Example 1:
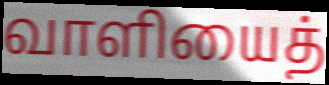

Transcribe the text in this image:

வாளியைத்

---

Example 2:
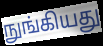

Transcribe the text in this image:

நுங்கியது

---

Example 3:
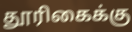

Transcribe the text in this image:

தூரிகைக்கு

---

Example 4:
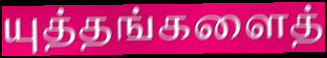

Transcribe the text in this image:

யுத்தங்களைத்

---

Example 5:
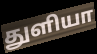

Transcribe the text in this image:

துளியா